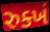
રુક્ખં